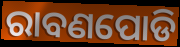
ରାବଣପୋଡି